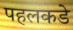
पहलकडे